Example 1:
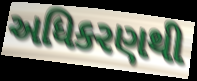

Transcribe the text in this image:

અધિકરણથી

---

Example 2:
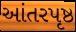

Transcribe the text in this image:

આંતરપૃષ્ઠ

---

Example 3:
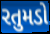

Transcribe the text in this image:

રતુમડો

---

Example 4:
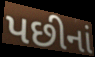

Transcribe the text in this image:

પછીનાં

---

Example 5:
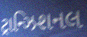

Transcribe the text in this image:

ટ્રાન્ઝિશનલ